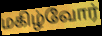
மகிழ்வோர்